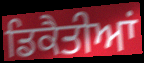
ਡਿਕੈਤੀਆਂ